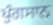
ਪੁੰਗਸਾਨ